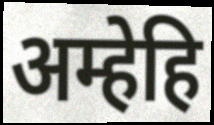
अम्हेहि